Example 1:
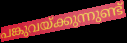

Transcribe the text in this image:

പങ്കുവയ്ക്കുന്നുണ്ട്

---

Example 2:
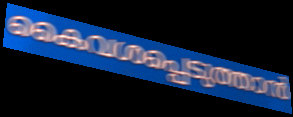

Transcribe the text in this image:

കൈവശപ്പെടുത്താൻ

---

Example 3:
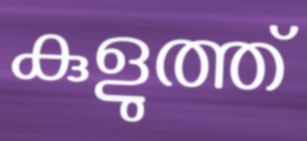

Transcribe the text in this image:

കുളുത്ത്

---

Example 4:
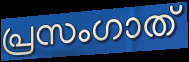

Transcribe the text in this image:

പ്രസംഗാത്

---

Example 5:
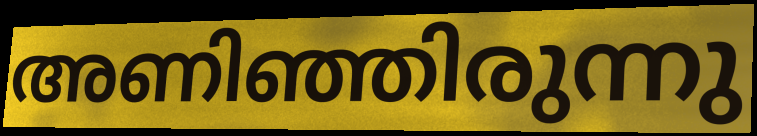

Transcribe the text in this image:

അണിഞ്ഞിരുന്നു